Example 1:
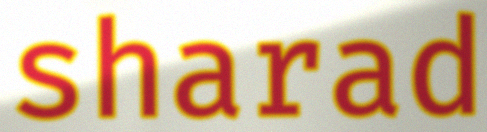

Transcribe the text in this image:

sharad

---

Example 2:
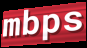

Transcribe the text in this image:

mbps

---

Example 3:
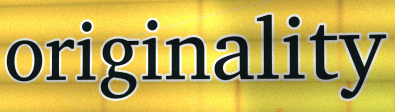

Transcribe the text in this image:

originality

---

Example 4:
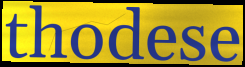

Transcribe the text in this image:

thodese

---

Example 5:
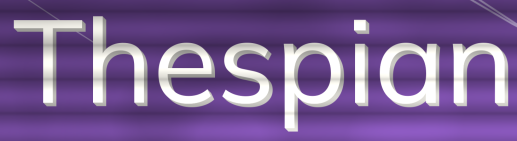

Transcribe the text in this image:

Thespian